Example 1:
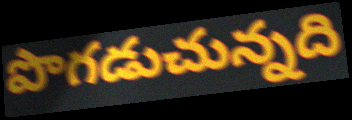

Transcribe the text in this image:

పొగడుచున్నది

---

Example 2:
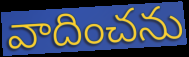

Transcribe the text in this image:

వాదించను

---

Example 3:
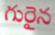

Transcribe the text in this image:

గురైన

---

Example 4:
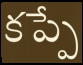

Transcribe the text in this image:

కప్పే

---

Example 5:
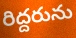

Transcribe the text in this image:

రిద్దరును